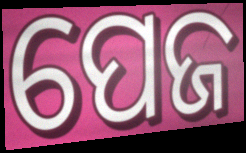
ପେଜ